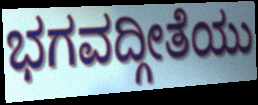
ಭಗವದ್ಗೀತೆಯು